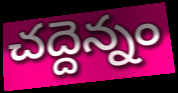
చద్దెన్నం